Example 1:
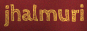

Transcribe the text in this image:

jhalmuri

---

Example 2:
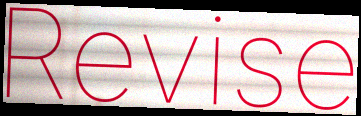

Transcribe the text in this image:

Revise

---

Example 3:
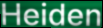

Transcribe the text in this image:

Heiden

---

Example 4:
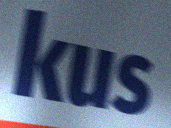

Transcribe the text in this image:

kus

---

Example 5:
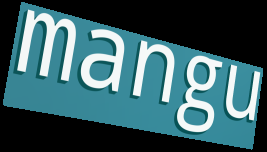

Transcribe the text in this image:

mangu